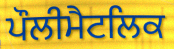
ਪੌਲੀਮੈਟਲਿਕ